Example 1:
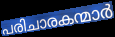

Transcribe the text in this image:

പരിചാരകന്മാർ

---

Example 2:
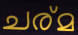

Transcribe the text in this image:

ചര്മ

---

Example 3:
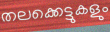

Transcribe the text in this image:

തലക്കെട്ടുകളും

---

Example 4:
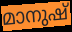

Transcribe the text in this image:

മാനുഷ്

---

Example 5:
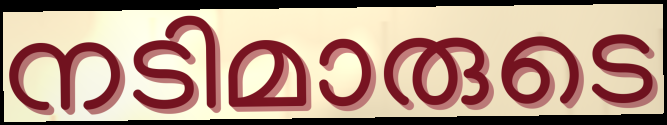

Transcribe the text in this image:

നടിമാരുടെ